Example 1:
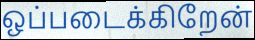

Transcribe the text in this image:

ஒப்படைக்கிறேன்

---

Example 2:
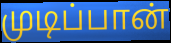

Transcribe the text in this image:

முடிப்பான்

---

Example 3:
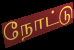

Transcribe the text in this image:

நோட்டு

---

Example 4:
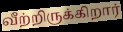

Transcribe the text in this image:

வீற்றிருக்கிறார்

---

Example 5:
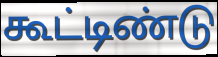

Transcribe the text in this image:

கூட்டிண்டு